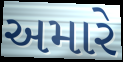
અમારે